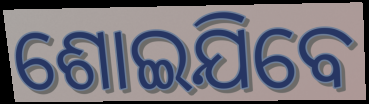
ଶୋଇଯିବେ